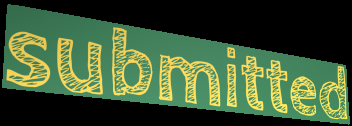
submitted